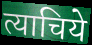
त्याचिये